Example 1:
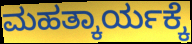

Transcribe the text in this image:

ಮಹತ್ಕಾರ್ಯಕ್ಕೆ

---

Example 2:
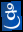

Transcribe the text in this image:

ಕ್ರಿ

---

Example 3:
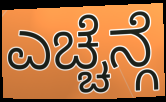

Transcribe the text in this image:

ಎಚ್ಚೆನ್ಗೆ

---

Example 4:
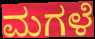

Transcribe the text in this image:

ಮಗಳೆ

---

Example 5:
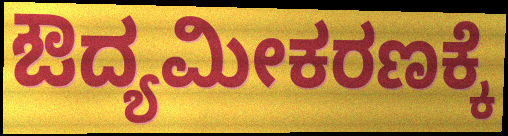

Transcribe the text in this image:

ಔದ್ಯಮೀಕರಣಕ್ಕೆ